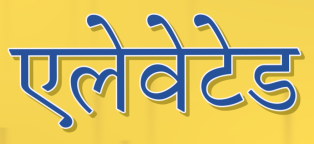
एलेवेटेड